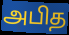
அபித